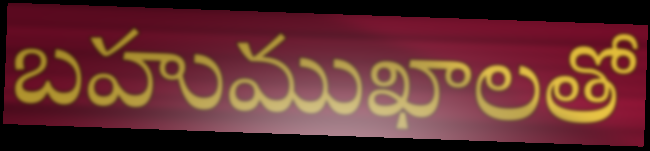
బహుముఖాలతో